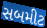
સબમીટ